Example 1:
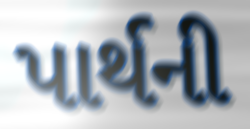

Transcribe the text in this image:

પાર્થની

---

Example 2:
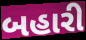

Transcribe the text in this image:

બહારી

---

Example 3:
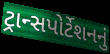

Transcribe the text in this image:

ટ્રાન્સપોર્ટેશનનું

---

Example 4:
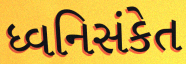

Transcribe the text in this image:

ધ્વનિસંકેત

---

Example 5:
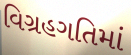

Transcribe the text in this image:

વિગ્રહગતિમાં